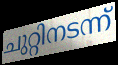
ചുറ്റിനടന്ന്